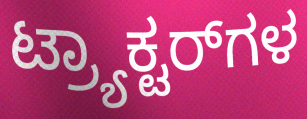
ಟ್ರ್ಯಾಕ್ಟರ್‌ಗಳ